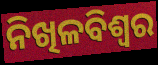
ନିଖିଳବିଶ୍ୱର